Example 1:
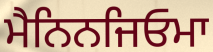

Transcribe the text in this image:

ਮੈਨਿਨਜਿਓਮਾ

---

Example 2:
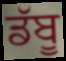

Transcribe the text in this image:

ਡੱਬੂ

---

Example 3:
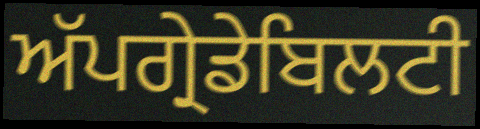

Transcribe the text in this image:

ਅੱਪਗ੍ਰੇਡੇਬਿਲਟੀ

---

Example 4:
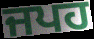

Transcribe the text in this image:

ਜਪਹ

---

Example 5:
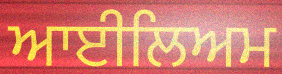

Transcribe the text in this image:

ਆਈਲਿਅਮ